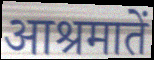
आश्रमातें